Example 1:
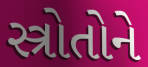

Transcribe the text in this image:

સ્ત્રોતોને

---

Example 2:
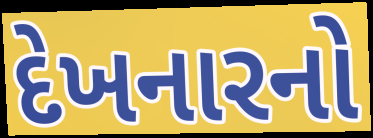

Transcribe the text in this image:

દેખનારનો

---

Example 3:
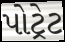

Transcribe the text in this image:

પોટ્રેટ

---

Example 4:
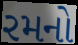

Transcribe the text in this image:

રમનો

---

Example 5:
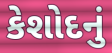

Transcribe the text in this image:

કેશોદનું